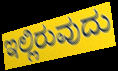
ಇಲ್ಲಿರುವುದು